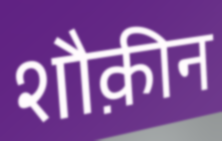
शौक़ीन